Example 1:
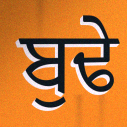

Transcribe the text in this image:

ਬੁਢੇ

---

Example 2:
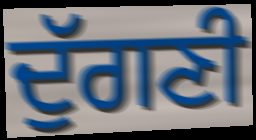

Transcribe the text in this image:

ਦੁੱਗਣੀ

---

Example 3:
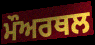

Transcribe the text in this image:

ਮੌਅਰਥਲ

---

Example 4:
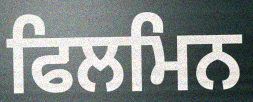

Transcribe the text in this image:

ਫਿਲਮਿਨ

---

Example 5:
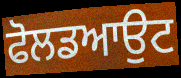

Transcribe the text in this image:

ਫੋਲਡਆਉਟ